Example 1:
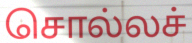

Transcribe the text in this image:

சொல்லச்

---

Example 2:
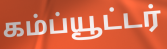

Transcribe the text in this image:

கம்ப்யூட்டர்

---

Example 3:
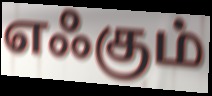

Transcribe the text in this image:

எஃகும்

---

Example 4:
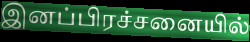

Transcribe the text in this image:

இனப்பிரச்சனையில்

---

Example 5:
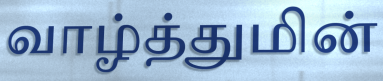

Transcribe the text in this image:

வாழ்த்துமின்